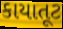
કાયાતૂટ